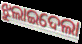
ଝୁଲାଇଦେଲା